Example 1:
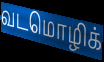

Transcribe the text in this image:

வடமொழிக்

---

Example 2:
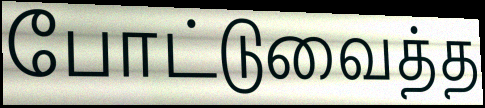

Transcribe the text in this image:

போட்டுவைத்த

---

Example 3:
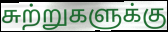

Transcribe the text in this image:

சுற்றுகளுக்கு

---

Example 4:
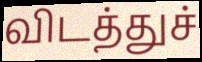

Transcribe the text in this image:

விடத்துச்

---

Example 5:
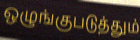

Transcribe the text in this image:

ஒழுங்குபடுத்தும்